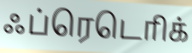
ஃப்ரெடெரிக்